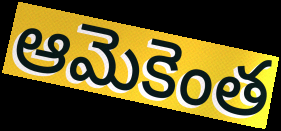
ఆమెకెంత